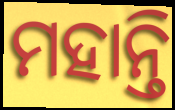
ମହାନ୍ତି